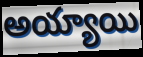
అయ్యాయి